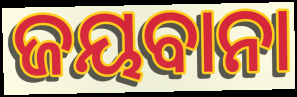
ଜୟବାନା